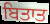
ਬਿਤਾਤ